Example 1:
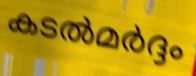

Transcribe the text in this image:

കടൽമർദ്ദം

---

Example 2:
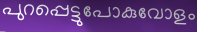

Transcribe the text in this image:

പുറപ്പെട്ടുപോകുവോളം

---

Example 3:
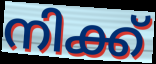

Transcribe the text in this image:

നിക്ക്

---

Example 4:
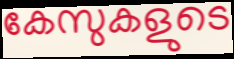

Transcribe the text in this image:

കേസുകളുടെ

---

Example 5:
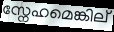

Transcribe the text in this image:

സ്നേഹമെങ്കില്